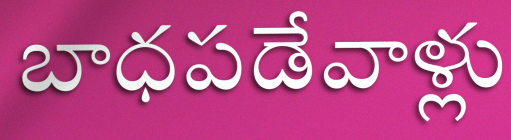
బాధపడేవాళ్లు